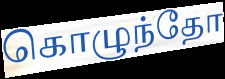
கொழுந்தோ